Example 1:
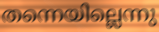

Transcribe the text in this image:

തന്നെയില്ലെന്നു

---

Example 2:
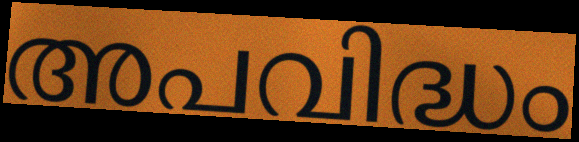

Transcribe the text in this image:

അപവിദ്ധം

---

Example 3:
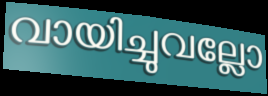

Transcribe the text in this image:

വായിച്ചുവല്ലോ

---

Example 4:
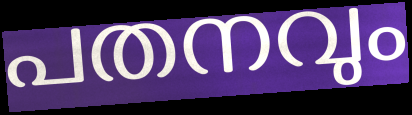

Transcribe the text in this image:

പതനവും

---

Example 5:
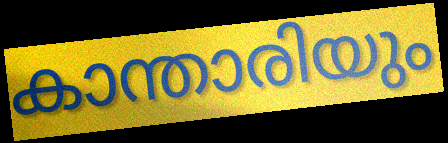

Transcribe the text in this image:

കാന്താരിയും